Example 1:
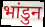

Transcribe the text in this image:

भांडुन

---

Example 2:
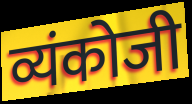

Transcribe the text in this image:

व्यंकोजी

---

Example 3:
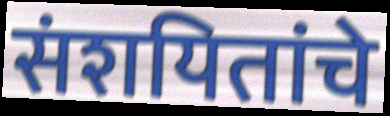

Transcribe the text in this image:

संशयितांचे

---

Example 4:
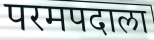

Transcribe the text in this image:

परमपदाला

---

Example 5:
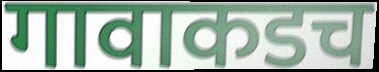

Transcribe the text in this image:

गावाकडच